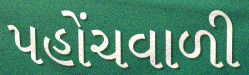
પહોંચવાળી